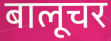
बालूचर